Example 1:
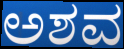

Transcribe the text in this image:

ಅಶವ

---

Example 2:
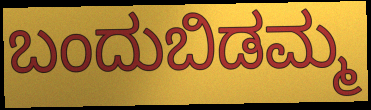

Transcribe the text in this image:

ಬಂದುಬಿಡಮ್ಮ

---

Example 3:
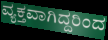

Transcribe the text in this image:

ವ್ಯಕ್ತವಾಗಿದ್ದರಿಂದ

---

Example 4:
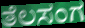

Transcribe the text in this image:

ತೆಲಸಂಗ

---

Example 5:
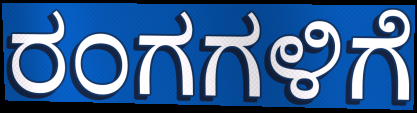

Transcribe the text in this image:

ರಂಗಗಳಿಗೆ